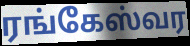
ரங்கேஸ்வர